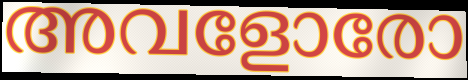
അവളോരോ